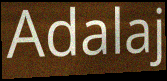
Adalaj